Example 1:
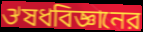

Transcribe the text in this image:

ঔষধবিজ্ঞানের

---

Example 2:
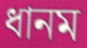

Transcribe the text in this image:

ধানম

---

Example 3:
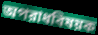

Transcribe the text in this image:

অপরাধবিষয়ক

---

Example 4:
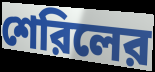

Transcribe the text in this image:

শেরিলের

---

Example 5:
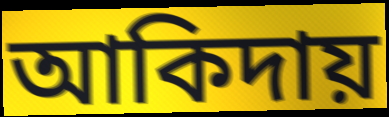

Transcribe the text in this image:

আকিদায়